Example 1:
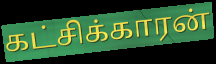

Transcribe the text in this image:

கட்சிக்காரன்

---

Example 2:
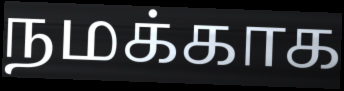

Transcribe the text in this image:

நமக்காக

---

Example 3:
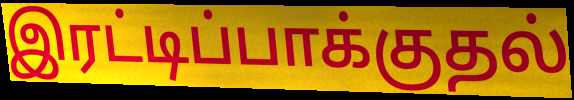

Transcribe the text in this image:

இரட்டிப்பாக்குதல்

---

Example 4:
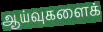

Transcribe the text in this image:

ஆய்வுகளைக்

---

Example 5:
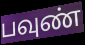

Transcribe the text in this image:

பவுண்